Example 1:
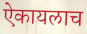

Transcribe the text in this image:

ऐकायलाच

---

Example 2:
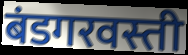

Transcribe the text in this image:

बंडगरवस्ती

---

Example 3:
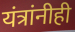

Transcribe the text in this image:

यंत्रांनीही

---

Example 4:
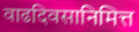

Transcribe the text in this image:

वाढदिवसानिमित्त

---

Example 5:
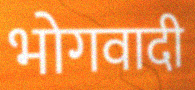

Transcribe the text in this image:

भोगवादी